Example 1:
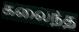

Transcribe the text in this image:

கலைந்த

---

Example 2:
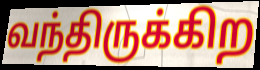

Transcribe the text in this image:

வந்திருக்கிற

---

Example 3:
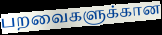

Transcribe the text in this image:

பறவைகளுக்கான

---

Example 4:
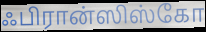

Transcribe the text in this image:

ஃபிரான்ஸிஸ்கோ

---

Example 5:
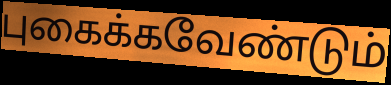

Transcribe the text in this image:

புகைக்கவேண்டும்